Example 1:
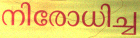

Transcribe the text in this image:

നിരോധിച്ച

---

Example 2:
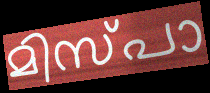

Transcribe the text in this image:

മിസ്പാ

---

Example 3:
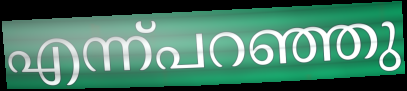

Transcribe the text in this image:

എന്ന്പറഞ്ഞു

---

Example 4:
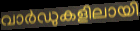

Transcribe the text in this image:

വാർഡുകളിലായി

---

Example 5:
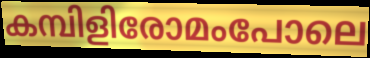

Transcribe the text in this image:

കമ്പിളിരോമംപോലെ